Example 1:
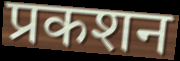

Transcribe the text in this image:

प्रकशन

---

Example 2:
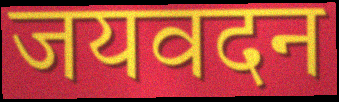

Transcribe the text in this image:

जयवदन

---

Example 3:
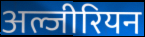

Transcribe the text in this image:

अल्जीरियन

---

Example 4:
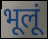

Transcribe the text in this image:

भूलूं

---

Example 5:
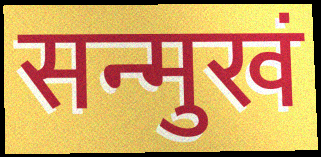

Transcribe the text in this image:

सन्मुखं